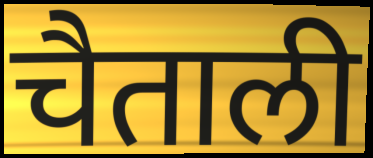
चैताली